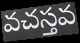
వచస్తవ